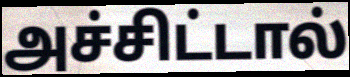
அச்சிட்டால்